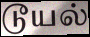
டூயல்